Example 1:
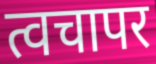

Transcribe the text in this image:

त्वचापर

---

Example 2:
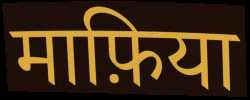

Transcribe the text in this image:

माफ़िया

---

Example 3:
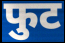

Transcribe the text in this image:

फुट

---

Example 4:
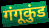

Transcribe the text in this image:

गंगूकुंड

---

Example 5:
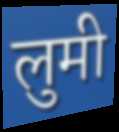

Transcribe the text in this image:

लुमी